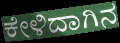
ಕೇಳಿದಾಗಿನ